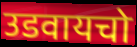
उडवायचो